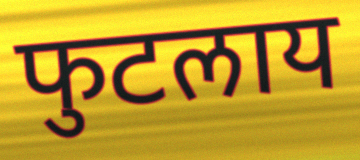
फुटलाय